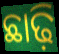
ଛାଢ଼ି